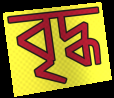
বৃদ্ধ